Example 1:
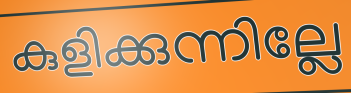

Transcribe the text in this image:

കുളിക്കുന്നില്ലേ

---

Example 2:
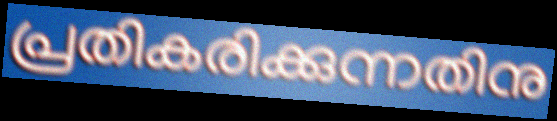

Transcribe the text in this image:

പ്രതികരിക്കുന്നതിനു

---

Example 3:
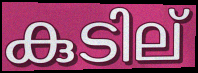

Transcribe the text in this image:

കുടില്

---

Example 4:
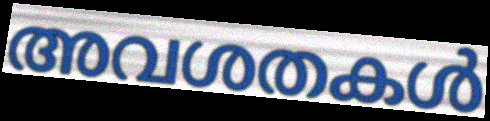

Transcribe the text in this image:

അവശതകൾ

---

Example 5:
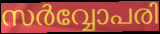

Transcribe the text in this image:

സർവ്വോപരി